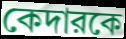
কেদারকে